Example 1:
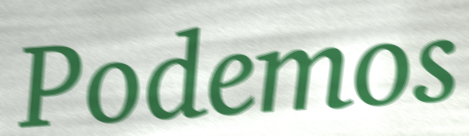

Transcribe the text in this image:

Podemos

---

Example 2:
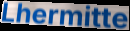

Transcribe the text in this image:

Lhermitte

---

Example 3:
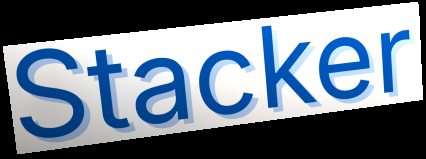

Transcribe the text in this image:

Stacker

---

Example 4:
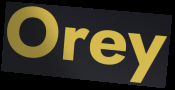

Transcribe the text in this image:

Orey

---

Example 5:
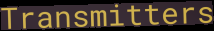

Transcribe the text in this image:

Transmitters